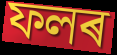
ফলৰ